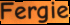
Fergie